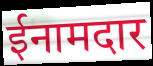
ईनामदार